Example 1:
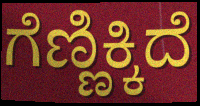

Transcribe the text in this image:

ಗೆಣ್ಣಿಕ್ಕಿದೆ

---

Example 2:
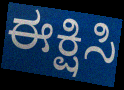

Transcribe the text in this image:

ಈಕ್ಷಿಸಿ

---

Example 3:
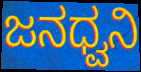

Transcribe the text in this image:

ಜನಧ್ವನಿ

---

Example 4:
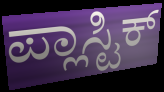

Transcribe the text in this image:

ಪ್ಲಾಸ್ಟಿಕ್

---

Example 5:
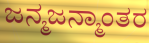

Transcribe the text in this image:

ಜನ್ಮಜನ್ಮಾಂತರ